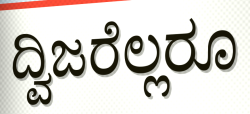
ದ್ವಿಜರೆಲ್ಲರೂ